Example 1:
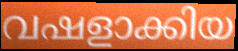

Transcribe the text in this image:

വഷളാക്കിയ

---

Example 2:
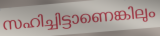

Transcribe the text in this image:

സഹിച്ചിട്ടാണെങ്കിലും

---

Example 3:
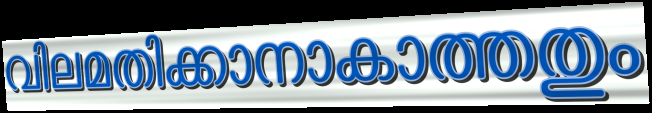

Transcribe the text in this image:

വിലമതിക്കാനാകാത്തതും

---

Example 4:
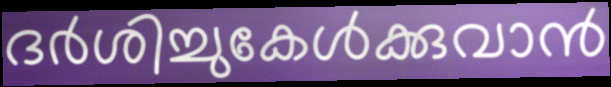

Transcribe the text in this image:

ദർശിച്ചുകേൾക്കുവാൻ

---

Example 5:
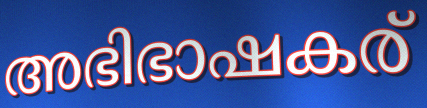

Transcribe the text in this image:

അഭിഭാഷകര്